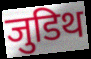
जुडिथ